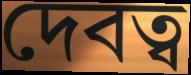
দেবত্ব